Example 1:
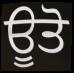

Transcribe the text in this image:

ਊਤੋ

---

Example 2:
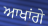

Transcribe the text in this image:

ਆਖਾਂਗੇ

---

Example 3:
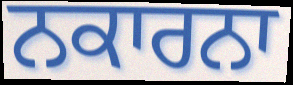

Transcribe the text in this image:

ਨਕਾਰਨਾ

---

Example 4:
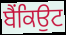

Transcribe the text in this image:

ਬੈਂਕਿਉਟ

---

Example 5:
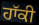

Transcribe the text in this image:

ਹਾੱਕੀ